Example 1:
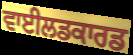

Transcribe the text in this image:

ਵਾਈਲਡਕਾਰਡ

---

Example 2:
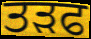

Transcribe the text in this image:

ਤੜਫ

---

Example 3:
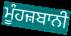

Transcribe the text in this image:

ਮੂੰਹਜ਼ਬਾਨੀ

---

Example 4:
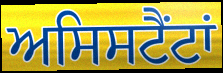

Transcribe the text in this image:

ਅਸਿਸਟੈਂਟਾਂ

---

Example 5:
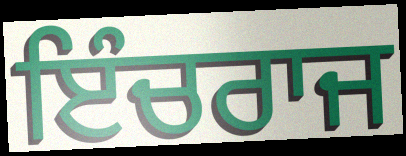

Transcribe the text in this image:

ਇੰਚਰਾਜ